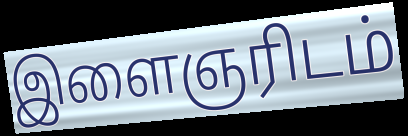
இளைஞரிடம்